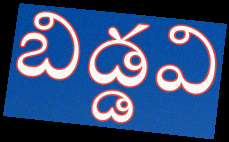
బిడ్డవి